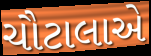
ચૌટાલાએ